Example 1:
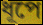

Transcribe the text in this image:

ধূপে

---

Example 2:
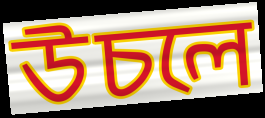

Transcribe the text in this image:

উচলে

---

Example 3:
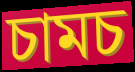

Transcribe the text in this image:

চামচ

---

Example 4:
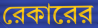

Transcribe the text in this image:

রেকারের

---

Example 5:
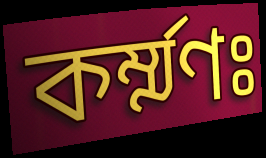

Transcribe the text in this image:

কর্ম্মণঃ